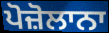
ਪੋਜ਼ੋਲਾਨਾ